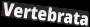
Vertebrata